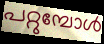
പറ്റുമ്പോൾ